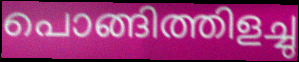
പൊങ്ങിത്തിളച്ചു